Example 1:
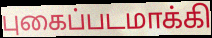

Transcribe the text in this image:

புகைப்படமாக்கி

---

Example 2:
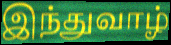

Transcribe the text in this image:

இந்துவாழ்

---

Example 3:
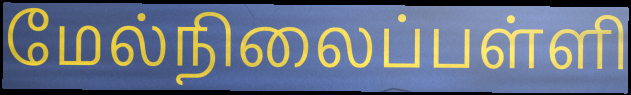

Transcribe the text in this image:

மேல்நிலைப்பள்ளி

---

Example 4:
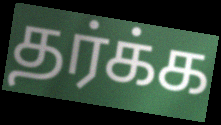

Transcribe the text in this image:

தர்க்க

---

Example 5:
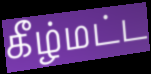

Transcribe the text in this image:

கீழ்மட்ட